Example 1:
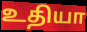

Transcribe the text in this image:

உதியா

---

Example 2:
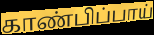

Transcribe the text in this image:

காண்பிப்பாய்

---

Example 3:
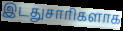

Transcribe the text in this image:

இடதுசாரிகளாக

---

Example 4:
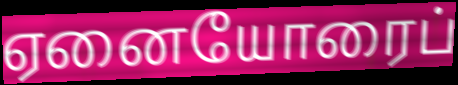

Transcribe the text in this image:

ஏனையோரைப்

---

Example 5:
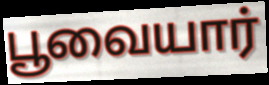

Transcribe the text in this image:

பூவையார்